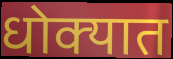
धोक्‍यात